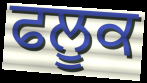
ਫਲੂਕ